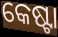
କେଷ୍ଟା